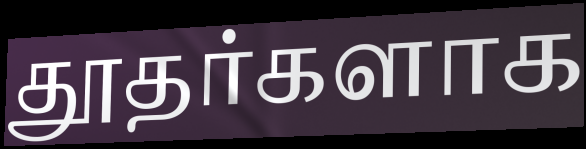
தூதர்களாக